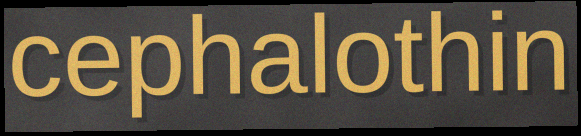
cephalothin